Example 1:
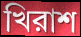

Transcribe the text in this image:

খিরাশ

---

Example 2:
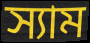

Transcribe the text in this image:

স্যাম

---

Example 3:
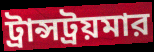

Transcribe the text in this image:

ট্রান্সট্রয়মার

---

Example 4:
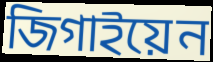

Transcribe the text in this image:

জিগাইয়েন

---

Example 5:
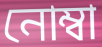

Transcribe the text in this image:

নোম্বা